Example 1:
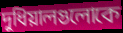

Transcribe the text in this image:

দুধিয়ালগুলোকে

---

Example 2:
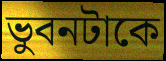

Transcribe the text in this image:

ভুবনটাকে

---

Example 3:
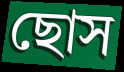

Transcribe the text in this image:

ছোস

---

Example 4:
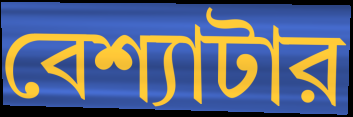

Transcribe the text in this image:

বেশ্যাটার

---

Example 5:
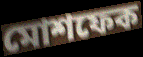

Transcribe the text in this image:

মোশফেক